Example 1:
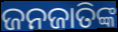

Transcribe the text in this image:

ଜନଜାତିଙ୍କ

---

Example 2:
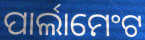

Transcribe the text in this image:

ପାର୍ଲାମେଂଟ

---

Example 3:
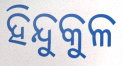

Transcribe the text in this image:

ହିନ୍ଦୁକୁଳ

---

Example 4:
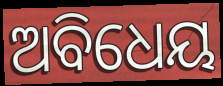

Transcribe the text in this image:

ଅବିଧେୟ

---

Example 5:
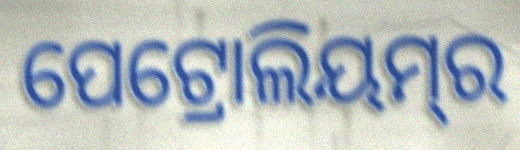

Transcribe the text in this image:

ପେଟ୍ରୋଲିୟମ୍‌ର